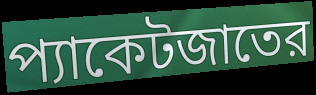
প্যাকেটজাতের